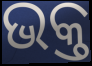
ଭକ୍ତ